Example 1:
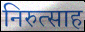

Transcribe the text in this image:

निरुत्साह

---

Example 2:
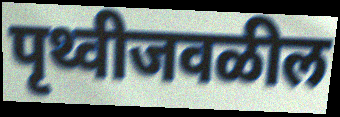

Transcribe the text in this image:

पृथ्वीजवळील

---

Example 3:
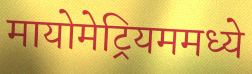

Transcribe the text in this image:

मायोमेट्रियममध्ये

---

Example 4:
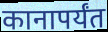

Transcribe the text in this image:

कानापर्यंत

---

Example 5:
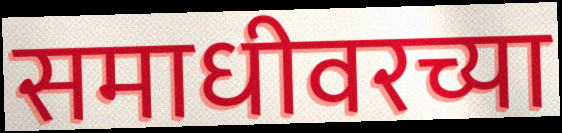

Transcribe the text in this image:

समाधीवरच्या